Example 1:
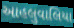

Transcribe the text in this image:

આહલુવાલિયા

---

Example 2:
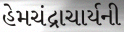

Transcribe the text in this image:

હેમચંદ્રાચાર્યની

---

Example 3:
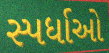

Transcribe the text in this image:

સ્પર્ધાઓ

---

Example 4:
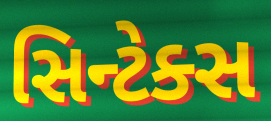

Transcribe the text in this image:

સિન્ટેક્સ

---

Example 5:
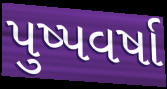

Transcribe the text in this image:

પુષ્પવર્ષા